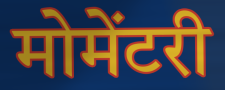
मोमेंटरी